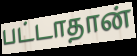
பட்டாதான்